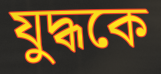
যুদ্ধকে